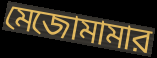
মেজোমামার